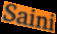
Saini